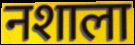
नशाला